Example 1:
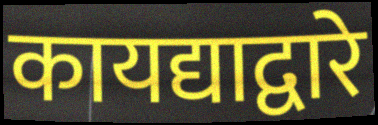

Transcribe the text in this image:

कायद्याद्वारे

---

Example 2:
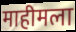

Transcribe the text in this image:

माहीमला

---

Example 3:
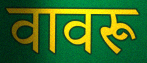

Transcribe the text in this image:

वावरू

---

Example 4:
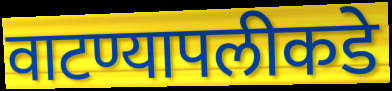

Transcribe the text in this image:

वाटण्यापलीकडे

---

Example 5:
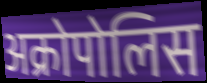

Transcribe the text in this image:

अक्रोपोलिस